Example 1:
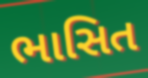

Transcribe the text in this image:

ભાસિત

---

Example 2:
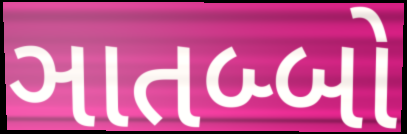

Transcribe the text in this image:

ઞાતબ્બો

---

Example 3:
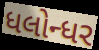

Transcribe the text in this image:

ધલોન્ધર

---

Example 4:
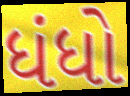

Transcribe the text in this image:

ધંધો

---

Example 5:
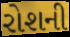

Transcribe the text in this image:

રોશની